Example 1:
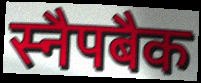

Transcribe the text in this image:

स्नैपबैक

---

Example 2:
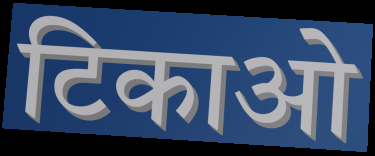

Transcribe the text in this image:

टिकाओ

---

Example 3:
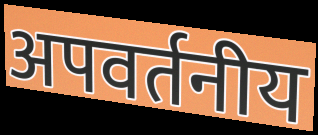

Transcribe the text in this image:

अपवर्तनीय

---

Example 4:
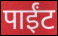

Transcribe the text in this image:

पाईंट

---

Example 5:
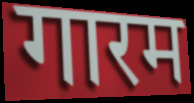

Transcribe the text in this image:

गारम